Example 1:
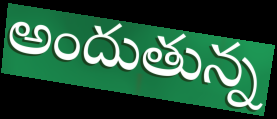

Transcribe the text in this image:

అందుతున్న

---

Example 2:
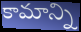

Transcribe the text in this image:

కామాన్ని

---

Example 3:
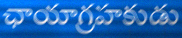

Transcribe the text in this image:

ఛాయాగ్రహకుడు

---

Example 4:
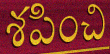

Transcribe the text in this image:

శపించి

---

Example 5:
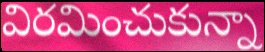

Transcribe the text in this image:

విరమించుకున్నా